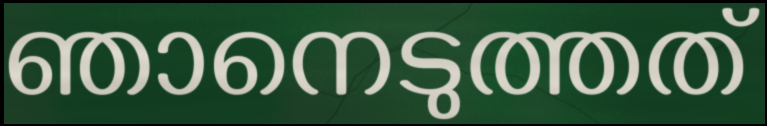
ഞാനെടുത്തത്